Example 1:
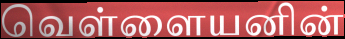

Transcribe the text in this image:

வெள்ளையனின்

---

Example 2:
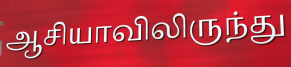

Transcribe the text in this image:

ஆசியாவிலிருந்து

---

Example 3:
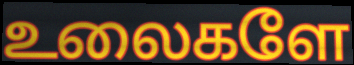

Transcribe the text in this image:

உலைகளே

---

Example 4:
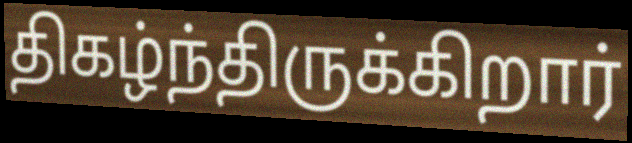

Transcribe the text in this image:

திகழ்ந்திருக்கிறார்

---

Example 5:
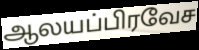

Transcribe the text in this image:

ஆலயப்பிரவேச